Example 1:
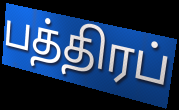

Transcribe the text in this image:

பத்திரப்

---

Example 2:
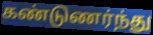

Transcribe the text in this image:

கண்டுணர்ந்து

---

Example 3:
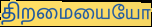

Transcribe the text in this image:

திறமையையோ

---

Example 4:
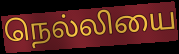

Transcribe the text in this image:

நெல்லியை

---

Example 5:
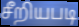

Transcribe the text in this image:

சீறியபடி